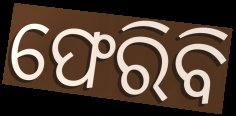
ଫେରିବି